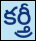
కర్త్రీ